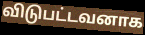
விடுபட்டவனாக